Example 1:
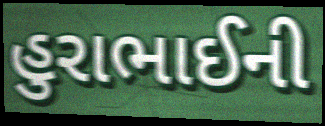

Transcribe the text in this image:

હુરાભાઈની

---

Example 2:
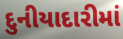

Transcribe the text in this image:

દુનીયાદારીમાં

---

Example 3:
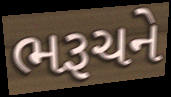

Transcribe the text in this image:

ભરૂચને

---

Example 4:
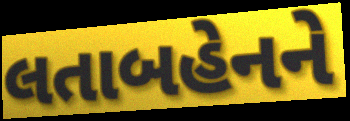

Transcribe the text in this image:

લતાબહેનને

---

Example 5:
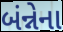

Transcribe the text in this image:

બંન્નેના